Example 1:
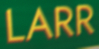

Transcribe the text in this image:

LARR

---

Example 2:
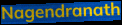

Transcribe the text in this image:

Nagendranath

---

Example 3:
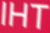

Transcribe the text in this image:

IHT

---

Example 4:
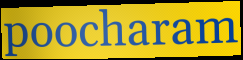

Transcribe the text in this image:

poocharam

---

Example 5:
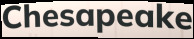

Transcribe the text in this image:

Chesapeake